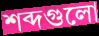
শব্দগুলো